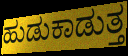
ಹುಡುಕಾಡುತ್ತ